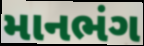
માનભંગ